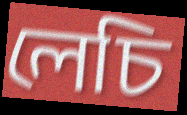
লেচি